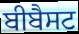
ਬੀਬੈਸਟ